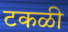
टकळी